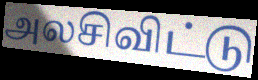
அலசிவிட்டு